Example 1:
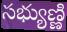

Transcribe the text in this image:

సభ్యుణ్ణి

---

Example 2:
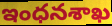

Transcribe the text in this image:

ఇంధనశాఖ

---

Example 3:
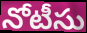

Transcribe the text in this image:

నోటీసు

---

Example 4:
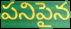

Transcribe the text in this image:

పనిపైన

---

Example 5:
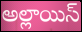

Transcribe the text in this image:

అల్లాయిస్